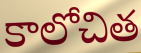
కాలోచిత